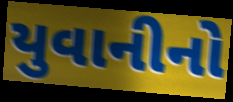
યુવાનીનો